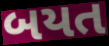
બયત